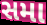
સમા